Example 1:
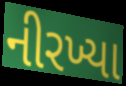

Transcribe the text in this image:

નીરખ્યા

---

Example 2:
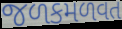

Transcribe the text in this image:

જળકમળવત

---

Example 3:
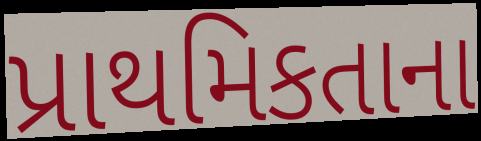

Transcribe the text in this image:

પ્રાથમિકતાના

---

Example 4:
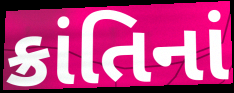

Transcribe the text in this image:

ક્રાંતિનાં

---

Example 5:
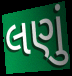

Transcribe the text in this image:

લણું